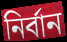
নির্বান